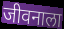
जीवनाला